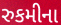
રુકમીના